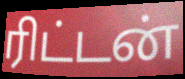
ரிட்டன்